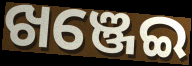
ଖଞ୍ଜେଇ